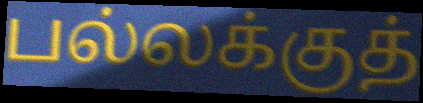
பல்லக்குத்